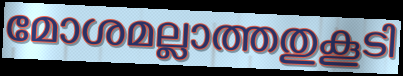
മോശമല്ലാത്തതുകൂടി